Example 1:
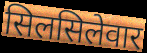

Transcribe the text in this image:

सिलसिलेवार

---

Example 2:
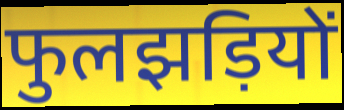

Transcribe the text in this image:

फुलझड़ियों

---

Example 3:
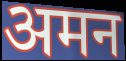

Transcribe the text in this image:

अमन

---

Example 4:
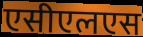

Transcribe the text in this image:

एसीएलएस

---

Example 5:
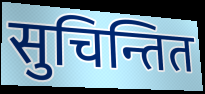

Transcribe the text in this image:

सुचिन्तित